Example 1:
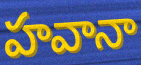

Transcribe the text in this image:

హవానా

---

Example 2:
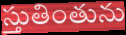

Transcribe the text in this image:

స్తుతింతును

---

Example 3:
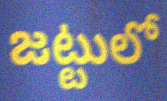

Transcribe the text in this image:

జట్టులో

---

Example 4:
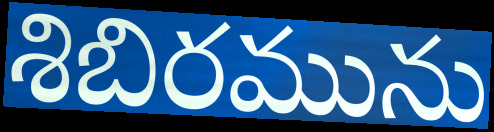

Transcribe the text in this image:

శిబిరమును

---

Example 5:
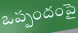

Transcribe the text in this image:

ఒప్పందంపై